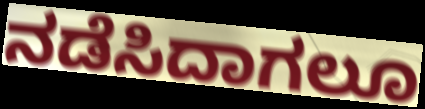
ನಡೆಸಿದಾಗಲೂ